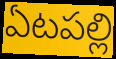
ఏటపల్లి